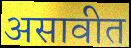
असावीत